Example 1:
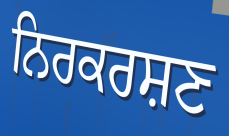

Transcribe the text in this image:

ਨਿਰਕਰਸ਼ਣ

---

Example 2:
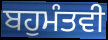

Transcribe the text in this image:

ਬਹੁਮੰਤਵੀ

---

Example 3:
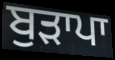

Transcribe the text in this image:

ਬੁੜਾਪਾ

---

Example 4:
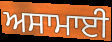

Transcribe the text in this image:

ਅਸਾਮਾਈ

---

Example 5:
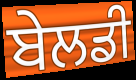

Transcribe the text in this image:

ਬੇਲਡੀ